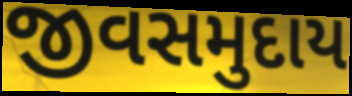
જીવસમુદાય